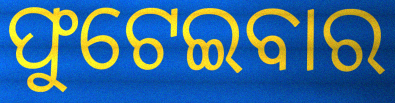
ଫୁଟେଇବାର